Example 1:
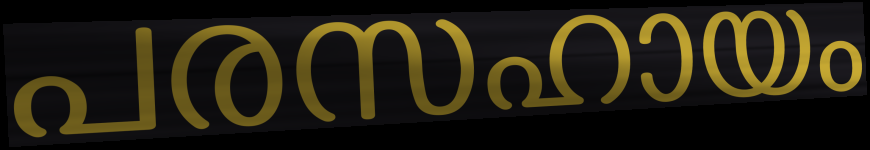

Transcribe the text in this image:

പരസഹായം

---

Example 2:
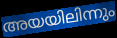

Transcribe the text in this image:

അയയിലിന്നും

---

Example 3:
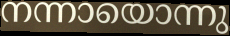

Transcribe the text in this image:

നന്നായൊന്നു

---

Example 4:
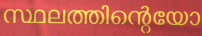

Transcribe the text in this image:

സ്ഥലത്തിന്റെയോ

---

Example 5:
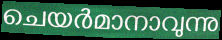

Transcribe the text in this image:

ചെയർമാനാവുന്നു